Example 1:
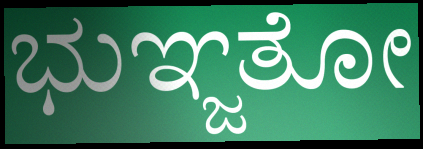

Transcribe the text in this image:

ಭುಞ್ಜತೋ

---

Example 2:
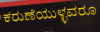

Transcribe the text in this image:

ಕರುಣೆಯುಳ್ಳವರೂ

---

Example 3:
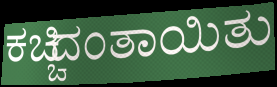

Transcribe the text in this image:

ಕಚ್ಚಿದಂತಾಯಿತು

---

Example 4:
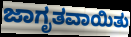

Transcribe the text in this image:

ಜಾಗೃತವಾಯಿತು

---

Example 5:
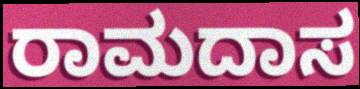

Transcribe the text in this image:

ರಾಮದಾಸ